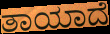
ತಾಯಾದೆ